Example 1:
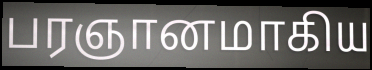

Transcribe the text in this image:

பரஞானமாகிய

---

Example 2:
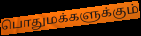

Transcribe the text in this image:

பொதுமக்களுக்கும்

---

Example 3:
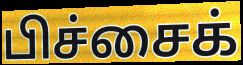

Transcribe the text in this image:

பிச்சைக்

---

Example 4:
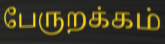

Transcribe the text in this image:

பேருறக்கம்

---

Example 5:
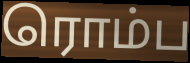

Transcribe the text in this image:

ரொம்ப